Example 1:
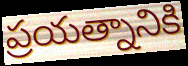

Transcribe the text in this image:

ప్రయత్నానికి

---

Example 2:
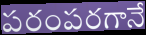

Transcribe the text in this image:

పరంపరగానే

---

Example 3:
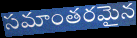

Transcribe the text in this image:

సమాంతరమైన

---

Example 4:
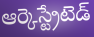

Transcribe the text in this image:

ఆర్కెస్ట్రేటెడ్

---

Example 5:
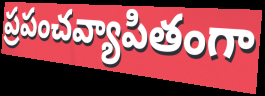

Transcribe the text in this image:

ప్రపంచవ్యాపితంగా